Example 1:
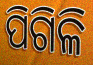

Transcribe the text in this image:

ପିଗିଳି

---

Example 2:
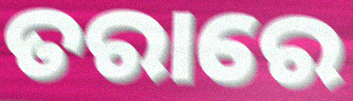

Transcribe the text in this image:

ତରାରେ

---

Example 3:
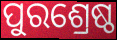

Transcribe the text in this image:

ପୁରଶ୍ରେଷ୍ଠ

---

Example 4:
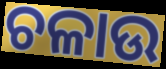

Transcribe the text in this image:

ଚଳାଉ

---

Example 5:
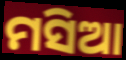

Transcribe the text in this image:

ମସିଆ